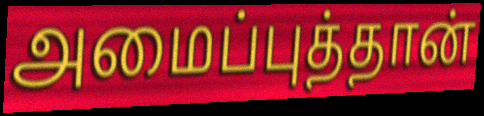
அமைப்புத்தான்